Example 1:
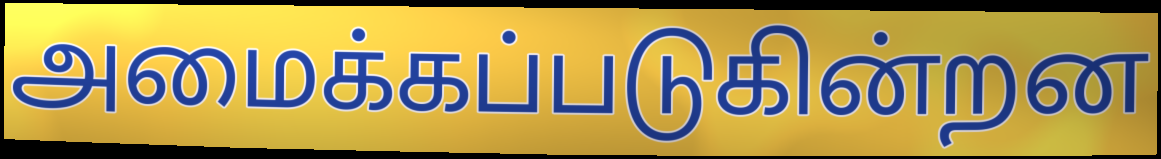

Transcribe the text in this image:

அமைக்கப்படுகின்றன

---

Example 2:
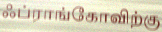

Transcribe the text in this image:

ஃப்ராங்கோவிற்கு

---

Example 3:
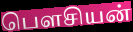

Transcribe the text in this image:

பௌசியன்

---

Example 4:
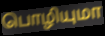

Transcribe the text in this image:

பொழியுமா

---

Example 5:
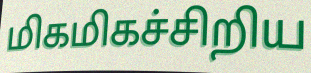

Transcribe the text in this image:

மிகமிகச்சிறிய